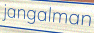
jangalman